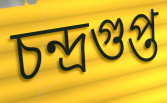
চন্দ্ৰগুপ্ত